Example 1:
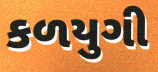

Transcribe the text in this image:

કળયુગી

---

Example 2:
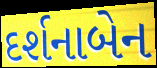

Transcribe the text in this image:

દર્શનાબેન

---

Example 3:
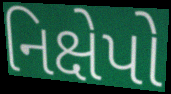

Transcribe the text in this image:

નિક્ષેપો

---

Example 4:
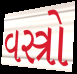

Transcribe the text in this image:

વસ્ત્રો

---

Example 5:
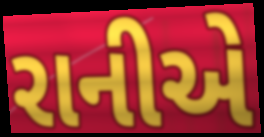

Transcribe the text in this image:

રાનીએ